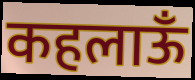
कहलाऊँ